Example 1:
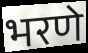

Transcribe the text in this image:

भरणे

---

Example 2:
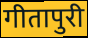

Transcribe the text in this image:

गीतापुरी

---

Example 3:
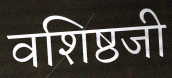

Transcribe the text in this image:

वशिष्ठजी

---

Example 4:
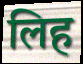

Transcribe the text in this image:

लिह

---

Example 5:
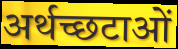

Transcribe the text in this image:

अर्थच्छटाओं